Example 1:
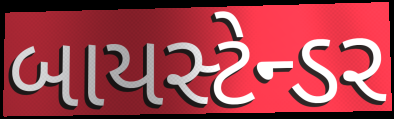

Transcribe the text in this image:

બાયસ્ટેન્ડર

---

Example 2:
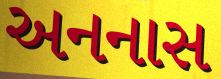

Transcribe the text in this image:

અનનાસ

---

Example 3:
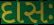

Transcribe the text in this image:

દાસઃ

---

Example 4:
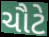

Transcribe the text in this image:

ચૌટે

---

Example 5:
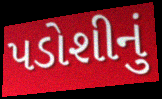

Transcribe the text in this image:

પડોશીનું